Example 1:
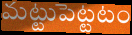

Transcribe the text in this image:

మట్టుపెట్టటం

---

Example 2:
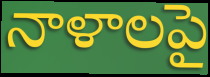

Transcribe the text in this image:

నాళాలపై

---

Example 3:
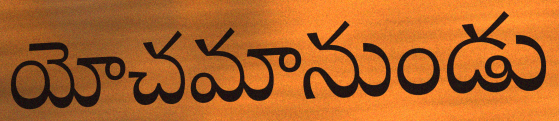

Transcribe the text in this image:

యోచమానుండు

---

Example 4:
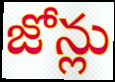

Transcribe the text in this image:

జోన్లు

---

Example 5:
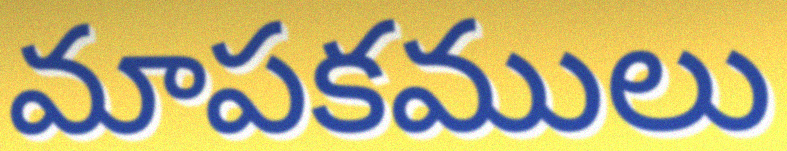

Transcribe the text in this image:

మాపకములు